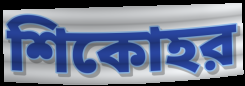
শিকোহর